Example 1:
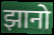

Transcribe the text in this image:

झानो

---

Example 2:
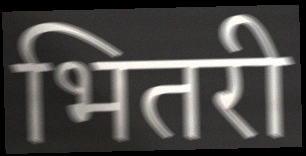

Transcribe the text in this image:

भितरी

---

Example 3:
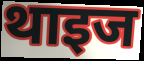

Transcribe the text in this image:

थाइज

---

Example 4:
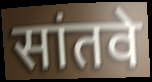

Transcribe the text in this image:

सांतवे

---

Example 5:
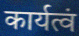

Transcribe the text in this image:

कार्यत्वं